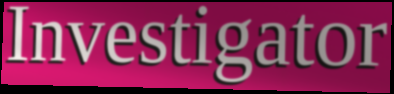
Investigator